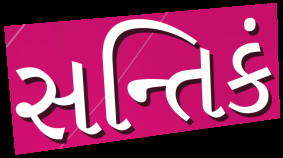
સન્તિકં